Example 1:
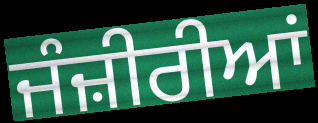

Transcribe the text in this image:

ਜੰਜ਼ੀਰੀਆਂ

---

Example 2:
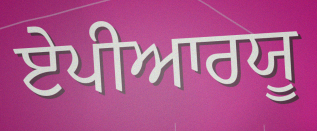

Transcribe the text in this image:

ਏਪੀਆਰਯੂ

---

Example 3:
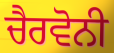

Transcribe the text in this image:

ਚੈਰਵੋਨੀ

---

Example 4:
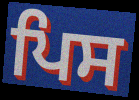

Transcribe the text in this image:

ਪਿਸ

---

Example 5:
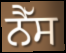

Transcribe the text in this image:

ਨੈੱਸ